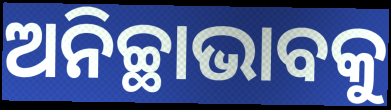
ଅନିଚ୍ଛାଭାବକୁ